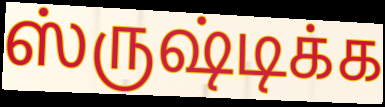
ஸ்ருஷ்டிக்க